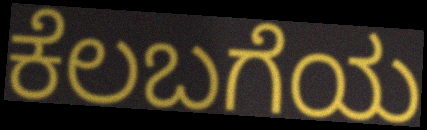
ಕೆಲಬಗೆಯ